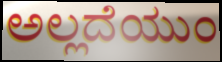
ಅಲ್ಲದೆಯುಂ